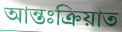
আন্তঃক্ৰিয়াত